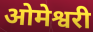
ओमेश्वरी